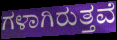
ಗಳಾಗಿರುತ್ತವೆ